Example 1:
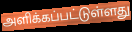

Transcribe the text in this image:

அளிக்கப்பட்டுள்ளது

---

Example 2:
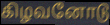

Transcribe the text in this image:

கிழவனோடு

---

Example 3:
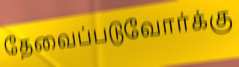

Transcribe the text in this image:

தேவைப்படுவோர்க்கு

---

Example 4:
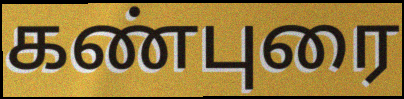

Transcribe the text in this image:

கண்புரை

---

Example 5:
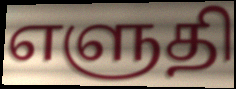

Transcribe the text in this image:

எளுதி